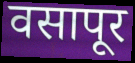
वसापूर